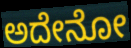
ಅದೇನೋ